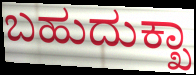
ಬಹುದುಕ್ಖಾ